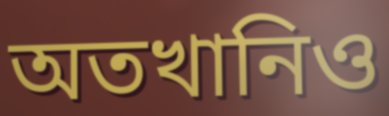
অতখানিও